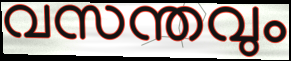
വസന്തവും